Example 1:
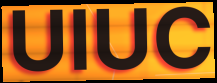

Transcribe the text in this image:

UIUC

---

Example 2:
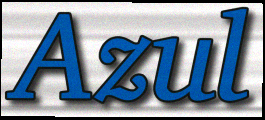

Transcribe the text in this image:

Azul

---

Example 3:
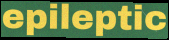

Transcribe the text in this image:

epileptic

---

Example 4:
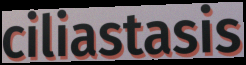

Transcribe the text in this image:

ciliastasis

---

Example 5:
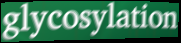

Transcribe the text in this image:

glycosylation